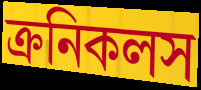
ক্রনিকলস